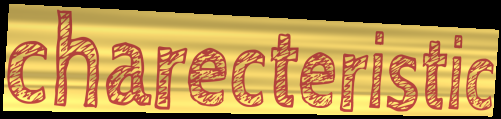
charecteristic